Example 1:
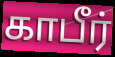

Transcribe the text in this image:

காபீர்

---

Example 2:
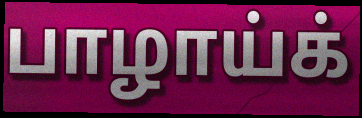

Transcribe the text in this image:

பாழாய்க்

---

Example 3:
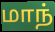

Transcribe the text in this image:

மாந்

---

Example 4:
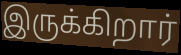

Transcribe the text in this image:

இருக்கிறார்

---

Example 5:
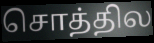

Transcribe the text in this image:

சொத்தில